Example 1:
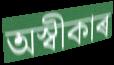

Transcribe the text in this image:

অস্বীকাৰ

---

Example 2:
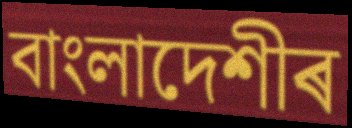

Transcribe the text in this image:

বাংলাদেশীৰ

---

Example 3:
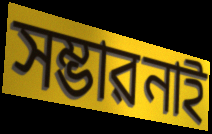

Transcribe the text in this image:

সম্ভাৱনাই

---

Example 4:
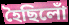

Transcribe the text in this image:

হৈছিলোঁ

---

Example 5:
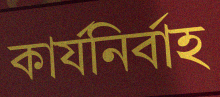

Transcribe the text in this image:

কাৰ্যনিৰ্বাহ